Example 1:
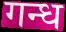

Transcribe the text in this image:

गन्‍ध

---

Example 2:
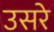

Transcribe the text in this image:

उसरे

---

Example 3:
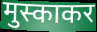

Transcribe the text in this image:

मुस्काकर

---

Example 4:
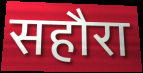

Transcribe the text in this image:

सहौरा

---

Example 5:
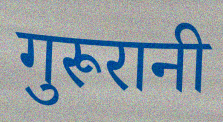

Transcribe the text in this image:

गुरूरानी